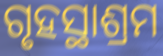
ଗୃହସ୍ଥାଶ୍ରମ